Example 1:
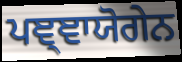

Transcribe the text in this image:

ਪਞ੍ਞਾਯੋਗੇਨ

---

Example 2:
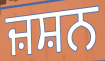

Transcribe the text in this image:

ਜ਼ਸ਼ਨ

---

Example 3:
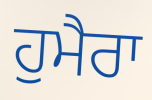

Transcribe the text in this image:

ਹੁਮੈਰਾ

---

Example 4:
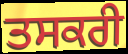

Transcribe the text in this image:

ਤਸਕਰੀ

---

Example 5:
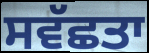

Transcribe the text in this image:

ਸਵੱਛਤਾ